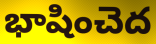
భాషించెద